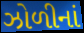
ઝોળીનાં